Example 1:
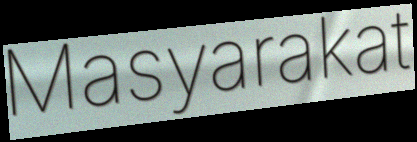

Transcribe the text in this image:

Masyarakat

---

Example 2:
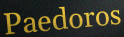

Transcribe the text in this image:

Paedoros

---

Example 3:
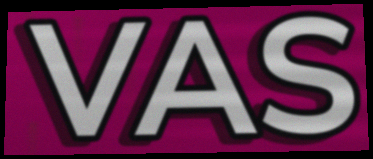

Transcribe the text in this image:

VAS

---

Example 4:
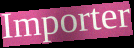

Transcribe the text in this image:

Importer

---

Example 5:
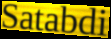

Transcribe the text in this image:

Satabdi